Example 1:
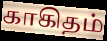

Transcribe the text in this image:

காகிதம்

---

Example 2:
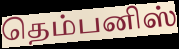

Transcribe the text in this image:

தெம்பனிஸ்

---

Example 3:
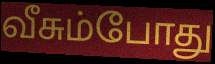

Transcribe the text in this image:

வீசும்போது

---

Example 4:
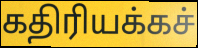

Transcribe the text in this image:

கதிரியக்கச்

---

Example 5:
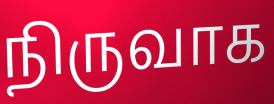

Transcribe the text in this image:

நிருவாக